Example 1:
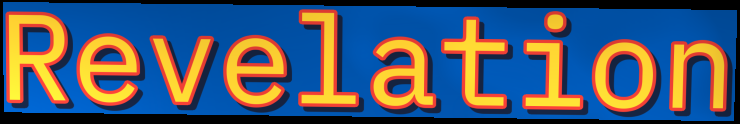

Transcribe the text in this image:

Revelation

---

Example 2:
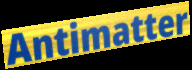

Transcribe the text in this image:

Antimatter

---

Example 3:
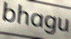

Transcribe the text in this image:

bhagu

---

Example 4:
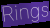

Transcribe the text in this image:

Rings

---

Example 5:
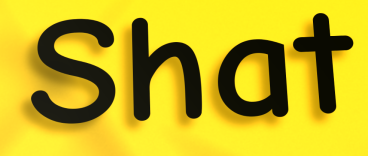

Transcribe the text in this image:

Shat